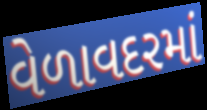
વેળાવદરમાં